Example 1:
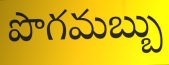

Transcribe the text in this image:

పొగమబ్బు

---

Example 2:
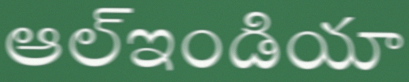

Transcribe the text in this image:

ఆల్ఇండియా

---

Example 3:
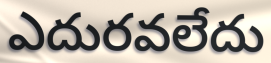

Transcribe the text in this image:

ఎదురవలేదు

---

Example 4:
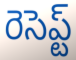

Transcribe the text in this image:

రెసెప్ట్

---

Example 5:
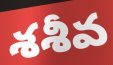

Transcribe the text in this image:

శశీవ